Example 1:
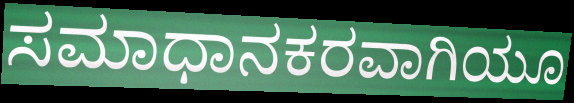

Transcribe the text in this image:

ಸಮಾಧಾನಕರವಾಗಿಯೂ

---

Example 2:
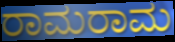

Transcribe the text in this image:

ರಾಮರಾಮ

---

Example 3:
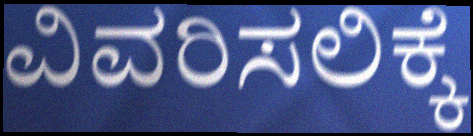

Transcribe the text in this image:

ವಿವರಿಸಲಿಕ್ಕೆ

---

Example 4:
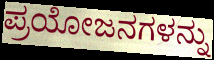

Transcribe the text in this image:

ಪ್ರಯೋಜನಗಳನ್ನು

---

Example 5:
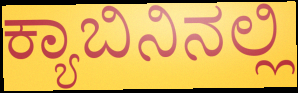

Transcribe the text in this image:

ಕ್ಯಾಬಿನಿನಲ್ಲಿ